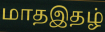
மாதஇதழ்